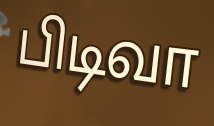
பிடிவா